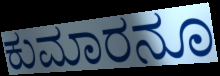
ಕುಮಾರನೂ